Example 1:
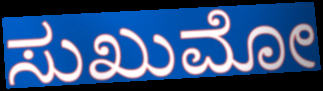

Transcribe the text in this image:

ಸುಖುಮೋ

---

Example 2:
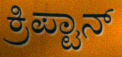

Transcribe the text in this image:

ಕ್ರಿಪ್ಟಾನ್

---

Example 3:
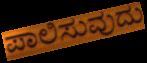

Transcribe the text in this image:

ಪಾಲಿಸುವುದು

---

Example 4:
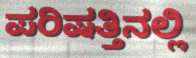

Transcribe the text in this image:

ಪರಿಷತ್ತಿನಲ್ಲಿ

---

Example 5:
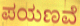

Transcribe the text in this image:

ಪಯಣವೆ